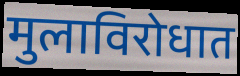
मुलाविरोधात